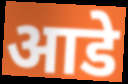
आडे